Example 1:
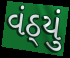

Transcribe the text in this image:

વંઠ્યું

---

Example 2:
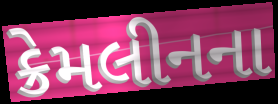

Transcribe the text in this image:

ક્રેમલીનના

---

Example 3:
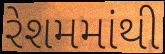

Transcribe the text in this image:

રેશમમાંથી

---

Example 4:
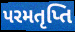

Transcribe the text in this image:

પરમતૃપ્તિ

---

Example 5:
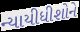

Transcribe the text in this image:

ન્યાયીધીશોને